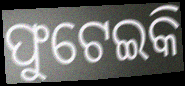
ଫୁଟେଇକି